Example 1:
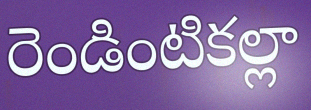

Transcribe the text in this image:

రెండింటికల్లా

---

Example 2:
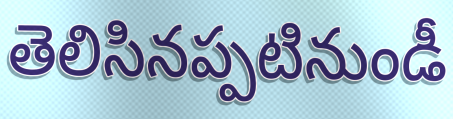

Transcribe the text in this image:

తెలిసినప్పటినుండీ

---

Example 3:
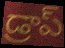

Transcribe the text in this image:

డ్రాప్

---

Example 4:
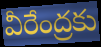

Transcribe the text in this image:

వీరేంద్రకు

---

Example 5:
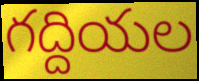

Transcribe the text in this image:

గద్దియల